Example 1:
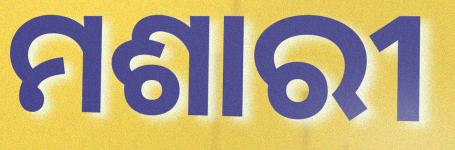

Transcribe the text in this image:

ମଶାରୀ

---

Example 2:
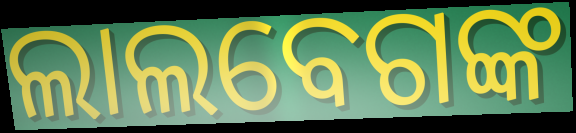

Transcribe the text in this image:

ଲାଲବେଗଙ୍କ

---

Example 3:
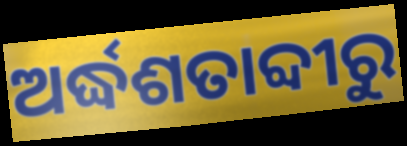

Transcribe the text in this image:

ଅର୍ଦ୍ଧଶତାବ୍ଦୀରୁ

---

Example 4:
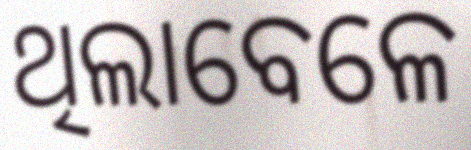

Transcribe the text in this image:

ଥିଲାବେଳେ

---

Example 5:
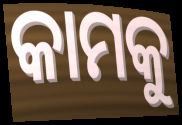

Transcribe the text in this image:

କାମକୁ